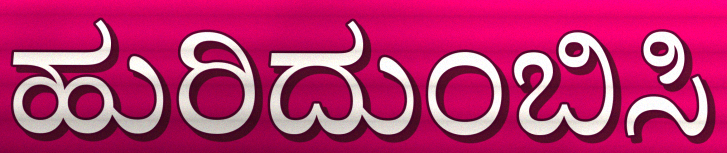
ಹುರಿದುಂಬಿಸಿ